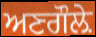
ਅਣਗੌਲ਼ੇ